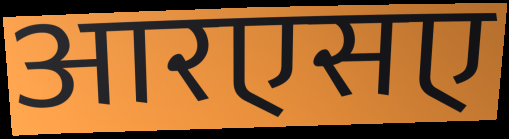
आरएसए